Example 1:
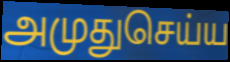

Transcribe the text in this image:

அமுதுசெய்ய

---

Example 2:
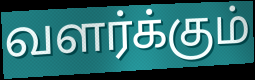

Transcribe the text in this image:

வளர்க்கும்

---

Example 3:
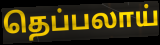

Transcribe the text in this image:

தெப்பலாய்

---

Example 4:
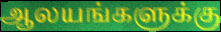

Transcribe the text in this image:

ஆலயங்களுக்கு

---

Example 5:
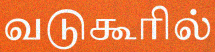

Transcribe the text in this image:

வடுகூரில்